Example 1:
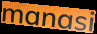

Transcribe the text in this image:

manasi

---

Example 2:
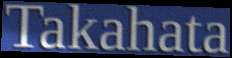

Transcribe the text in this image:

Takahata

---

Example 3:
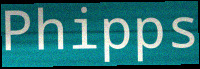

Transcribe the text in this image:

Phipps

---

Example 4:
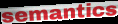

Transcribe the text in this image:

semantics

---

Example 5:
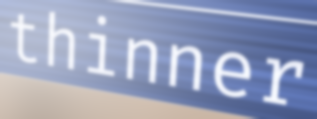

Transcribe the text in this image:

thinner